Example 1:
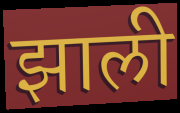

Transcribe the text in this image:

झाली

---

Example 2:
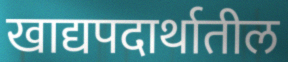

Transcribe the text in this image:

खाद्यपदार्थातील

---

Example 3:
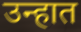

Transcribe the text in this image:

उन्हात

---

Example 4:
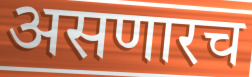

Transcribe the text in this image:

असणारच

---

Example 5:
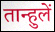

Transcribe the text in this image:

तान्हुलें